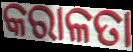
କରାଳତା